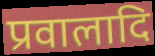
प्रवालादि